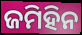
ଜମିହିନ